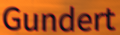
Gundert